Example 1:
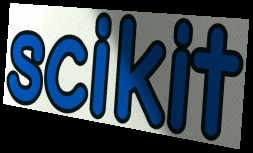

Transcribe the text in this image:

scikit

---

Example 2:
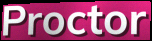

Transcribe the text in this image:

Proctor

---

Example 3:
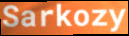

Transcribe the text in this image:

Sarkozy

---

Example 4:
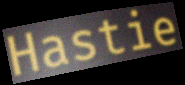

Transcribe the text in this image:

Hastie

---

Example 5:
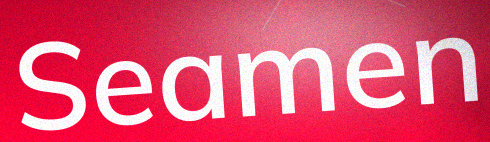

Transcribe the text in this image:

Seamen